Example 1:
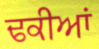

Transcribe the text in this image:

ਢਕੀਆਂ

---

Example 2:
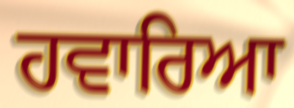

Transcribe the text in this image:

ਹਵਾਰਿਆ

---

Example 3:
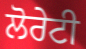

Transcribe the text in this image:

ਲੋਰੇਟੀ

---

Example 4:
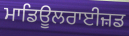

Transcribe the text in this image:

ਮਾਡਿਊਲਰਾਈਜ਼ਡ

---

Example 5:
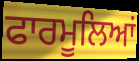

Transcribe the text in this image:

ਫਾਰਮੂਲਿਆਂ